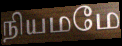
நியமமே